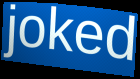
joked